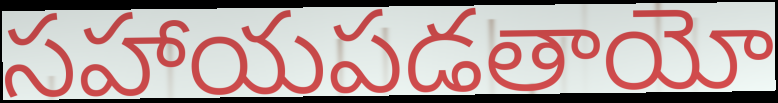
సహాయపడతాయో